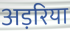
अड़रिया